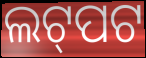
ଲଟ୍‌ପଟ